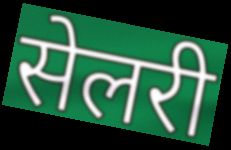
सेलरी